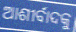
ଆଶୀର୍ବାଦକୁ